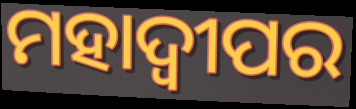
ମହାଦ୍ୱୀପର